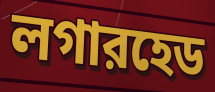
লগারহেড